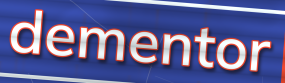
dementor